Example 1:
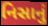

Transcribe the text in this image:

નિસાનું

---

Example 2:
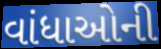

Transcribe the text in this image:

વાંધાઓની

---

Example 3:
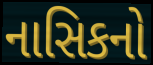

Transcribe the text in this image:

નાસિકનો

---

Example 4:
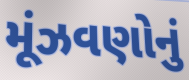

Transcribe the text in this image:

મૂંઝવણોનું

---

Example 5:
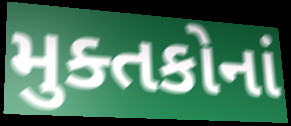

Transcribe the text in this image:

મુક્તકોનાં